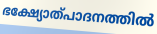
ഭക്ഷ്യോത്പാദനത്തിൽ